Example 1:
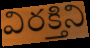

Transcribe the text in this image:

విరక్తిని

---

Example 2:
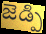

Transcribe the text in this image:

జెడ్పి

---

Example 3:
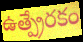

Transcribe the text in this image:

ఉత్ప్రేరకం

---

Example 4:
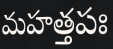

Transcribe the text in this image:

మహత్తపః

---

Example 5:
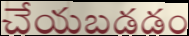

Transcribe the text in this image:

చేయబడడం